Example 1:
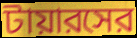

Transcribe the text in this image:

টায়ারসের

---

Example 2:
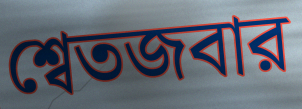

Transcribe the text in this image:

শ্বেতজবার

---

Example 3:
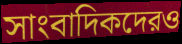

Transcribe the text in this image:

সাংবাদিকদেরও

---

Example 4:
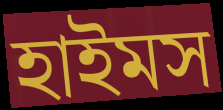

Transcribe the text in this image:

হাইমস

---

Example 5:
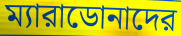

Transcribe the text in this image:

ম্যারাডোনাদের